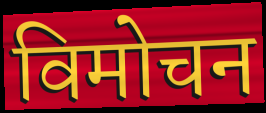
विमोचन